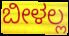
ಬೀಳಲ್ಲ